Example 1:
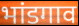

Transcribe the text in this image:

भांडगाव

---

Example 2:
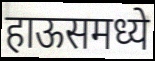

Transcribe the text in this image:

हाऊसमध्ये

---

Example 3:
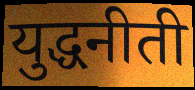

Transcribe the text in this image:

युद्धनीती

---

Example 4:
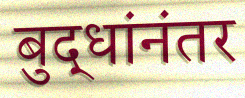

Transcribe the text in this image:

बुद्धांनंतर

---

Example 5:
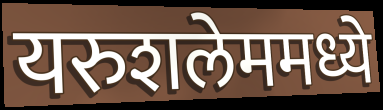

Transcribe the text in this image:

यरुशलेममध्ये